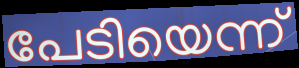
പേടിയെന്ന്